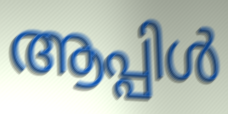
ആപ്പിൾ